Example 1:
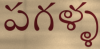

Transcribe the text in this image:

పగళ్ళ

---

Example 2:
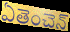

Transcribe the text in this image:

ఏతెంచెన్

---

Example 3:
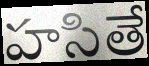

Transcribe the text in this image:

హసితే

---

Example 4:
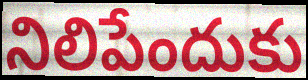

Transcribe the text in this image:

నిలిపేందుకు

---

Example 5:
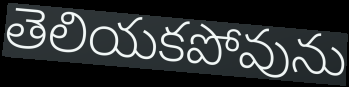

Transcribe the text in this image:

తెలియకపోవును